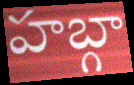
హబ్గా